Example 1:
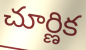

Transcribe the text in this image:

చూర్ణిక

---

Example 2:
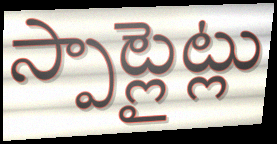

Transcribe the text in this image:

స్పాట్లైట్లు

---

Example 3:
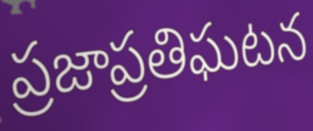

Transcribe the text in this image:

ప్రజాప్రతిఘటన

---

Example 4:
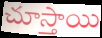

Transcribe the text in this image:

చూస్తాయి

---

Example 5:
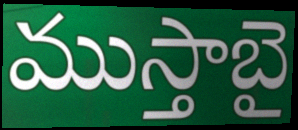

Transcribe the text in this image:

ముస్తాబై